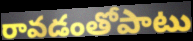
రావడంతోపాటు